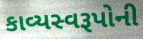
કાવ્યસ્વરૂપોની